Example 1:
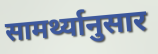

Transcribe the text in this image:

सामर्थ्यानुसार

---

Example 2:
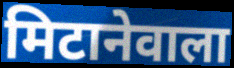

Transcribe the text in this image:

मिटानेवाला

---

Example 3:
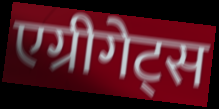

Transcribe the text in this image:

एग्रीगेट्स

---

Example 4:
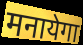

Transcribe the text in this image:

मनायेगा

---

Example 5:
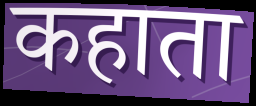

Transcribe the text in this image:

कहाता